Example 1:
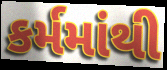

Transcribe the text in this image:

કર્મમાંથી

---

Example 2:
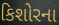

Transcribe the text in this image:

કિશોરના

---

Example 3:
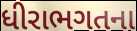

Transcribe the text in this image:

ધીરાભગતના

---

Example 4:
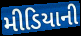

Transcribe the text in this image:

મીડિયાની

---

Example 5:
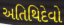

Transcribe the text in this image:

અતિથિદેવો